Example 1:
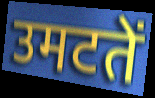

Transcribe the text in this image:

उमटतें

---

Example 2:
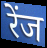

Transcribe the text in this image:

रेंज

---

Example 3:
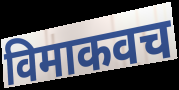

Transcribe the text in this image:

विमाकवच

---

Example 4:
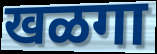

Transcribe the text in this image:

खळगा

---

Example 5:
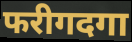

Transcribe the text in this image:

फरीगदगा